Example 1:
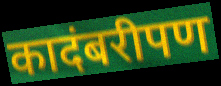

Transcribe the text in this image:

कादंबरीपण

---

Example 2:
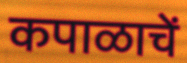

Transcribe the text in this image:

कपाळाचें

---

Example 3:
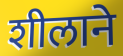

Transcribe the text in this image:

शीलाने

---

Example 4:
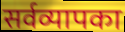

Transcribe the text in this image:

सर्वव्यापका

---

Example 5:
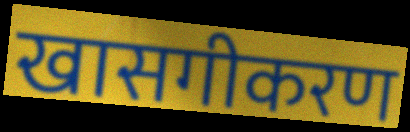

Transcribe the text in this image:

खासगीकरण